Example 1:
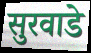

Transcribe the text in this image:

सुरवाडे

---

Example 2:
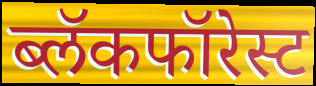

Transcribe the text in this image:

ब्लॅकफॉरेस्ट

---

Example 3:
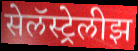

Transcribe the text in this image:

सेलॅस्ट्रेलीझ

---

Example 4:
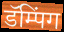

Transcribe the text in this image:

डॅम्पिंग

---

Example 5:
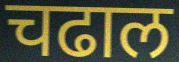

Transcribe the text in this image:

चढाल